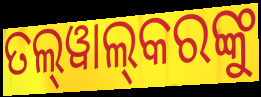
ତଲ୍‌ୱାଲ୍‌କରଙ୍କୁ